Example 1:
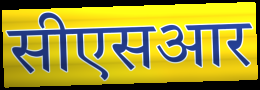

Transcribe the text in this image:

सीएसआर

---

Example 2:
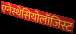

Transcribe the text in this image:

एनेस्थेसियोलॉजिस्ट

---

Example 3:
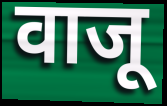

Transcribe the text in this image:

वाजू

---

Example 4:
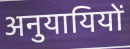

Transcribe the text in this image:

अनुयायियों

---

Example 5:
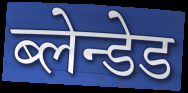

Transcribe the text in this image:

ब्लेन्डेड